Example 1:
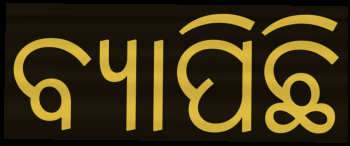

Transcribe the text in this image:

ବ୍ୟାପିଛି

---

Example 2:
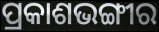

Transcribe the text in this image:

ପ୍ରକାଶଭଙ୍ଗୀର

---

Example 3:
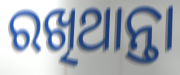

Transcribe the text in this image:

ରଖିଥାନ୍ତା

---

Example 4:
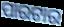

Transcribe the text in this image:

ପାରଟାର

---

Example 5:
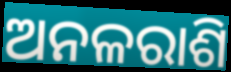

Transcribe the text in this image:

ଅନଳରାଶି